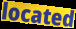
located